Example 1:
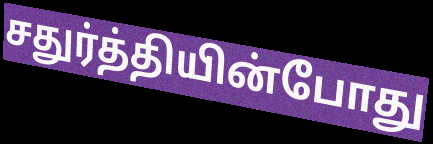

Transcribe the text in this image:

சதுர்த்தியின்போது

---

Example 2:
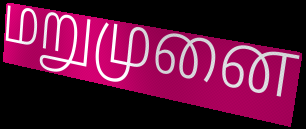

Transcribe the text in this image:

மறுமுனை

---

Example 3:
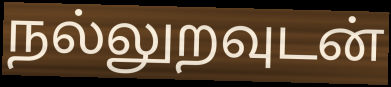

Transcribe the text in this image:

நல்லுறவுடன்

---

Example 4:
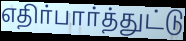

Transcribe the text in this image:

எதிர்பார்த்துட்டு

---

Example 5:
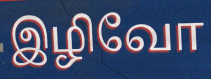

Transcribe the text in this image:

இழிவோ